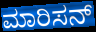
ಮಾರಿಸನ್